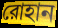
রোহান